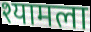
श्यामला